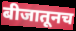
बीजातूनच